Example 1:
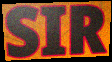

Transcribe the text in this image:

SIR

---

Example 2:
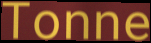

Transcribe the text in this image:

Tonne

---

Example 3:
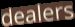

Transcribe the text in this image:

dealers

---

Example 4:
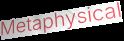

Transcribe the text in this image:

Metaphysical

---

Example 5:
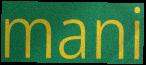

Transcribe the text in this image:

mani